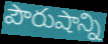
పౌరుషాన్ని